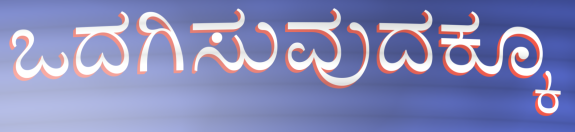
ಒದಗಿಸುವುದಕ್ಕೂ